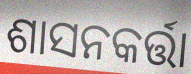
ଶାସନକର୍ତ୍ତା